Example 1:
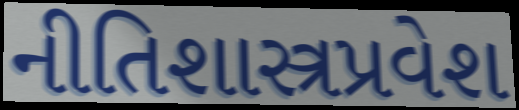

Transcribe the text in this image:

નીતિશાસ્ત્રપ્રવેશ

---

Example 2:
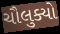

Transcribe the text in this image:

ચૌલુક્યો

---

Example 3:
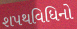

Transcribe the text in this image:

શપથવિધિનો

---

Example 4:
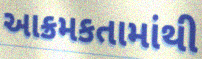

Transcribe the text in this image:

આક્રમકતામાંથી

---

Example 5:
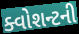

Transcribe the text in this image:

ક્વોશન્ટની